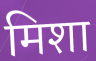
मिशा